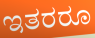
ಇತರರೂ